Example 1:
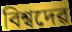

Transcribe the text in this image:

বিশ্বদেৱ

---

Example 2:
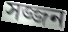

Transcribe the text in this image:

সজ্জন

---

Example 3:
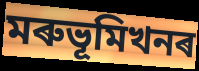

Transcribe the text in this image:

মৰুভূমিখনৰ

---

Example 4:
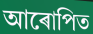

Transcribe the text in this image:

আৰোপিত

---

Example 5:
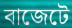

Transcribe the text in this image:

বাজেটে